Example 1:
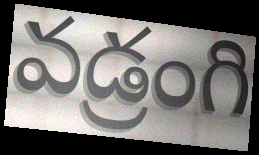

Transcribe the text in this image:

వడ్రంగి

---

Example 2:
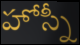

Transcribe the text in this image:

హోస్నీ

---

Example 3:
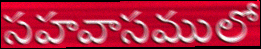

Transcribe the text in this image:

సహవాసములో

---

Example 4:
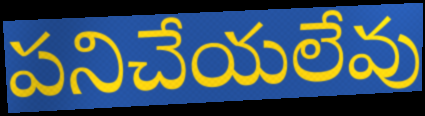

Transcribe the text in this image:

పనిచేయలేవు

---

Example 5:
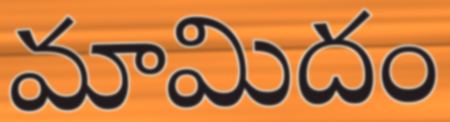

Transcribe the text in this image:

మామిదం